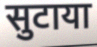
सुटाया